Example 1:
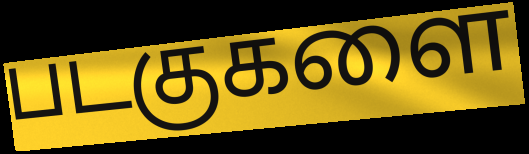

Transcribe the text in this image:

படகுகளை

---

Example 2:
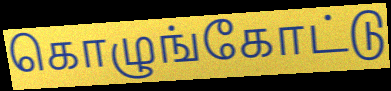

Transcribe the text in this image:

கொழுங்கோட்டு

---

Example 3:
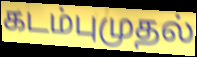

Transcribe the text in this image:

கடம்புமுதல்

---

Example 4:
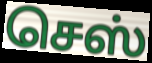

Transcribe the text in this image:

செஸ்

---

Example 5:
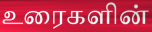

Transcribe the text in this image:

உரைகளின்